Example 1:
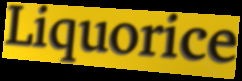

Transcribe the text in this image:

Liquorice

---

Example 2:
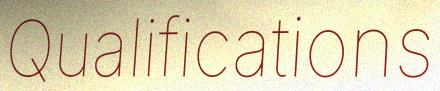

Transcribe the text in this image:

Qualifications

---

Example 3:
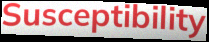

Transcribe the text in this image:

Susceptibility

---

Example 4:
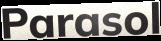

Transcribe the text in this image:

Parasol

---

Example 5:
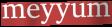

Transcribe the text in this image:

meyyum